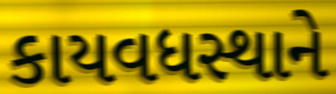
કાયવધસ્થાને